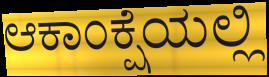
ಆಕಾಂಕ್ಷೆಯಲ್ಲಿ